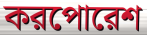
করপোরেশ